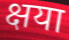
क्षया